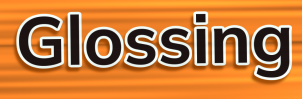
Glossing